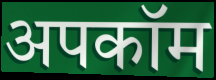
अपकॉम